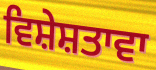
ਵਿਸ਼ੇਸ਼ਤਾਵਾ